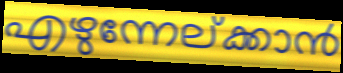
എഴുന്നേല്ക്കാൻ